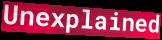
Unexplained